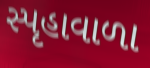
સ્પૃહાવાળા